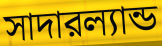
সাদারল্যান্ড